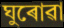
ঘুৰোৱা